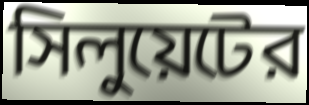
সিলুয়েটের